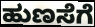
ಹುಣಸೆಗೆ